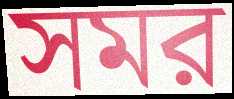
সমর